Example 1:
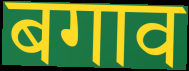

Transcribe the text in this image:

बगाव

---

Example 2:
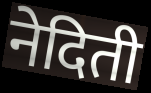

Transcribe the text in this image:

नेदिती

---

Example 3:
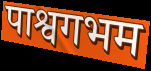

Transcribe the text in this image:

पाश्वगभम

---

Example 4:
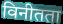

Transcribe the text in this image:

विनीतता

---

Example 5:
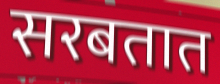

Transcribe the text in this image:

सरबतात